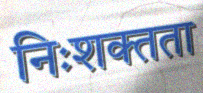
निःशक्तता